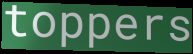
toppers